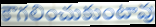
కౌగలించుకుంటావు